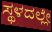
ಸ್ಥಳದಲ್ಲೇ